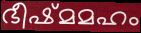
ഭീഷ്മമഹം